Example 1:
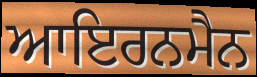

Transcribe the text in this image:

ਆਇਰਨਮੈਨ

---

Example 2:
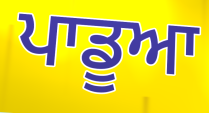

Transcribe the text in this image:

ਪਾਡੂਆ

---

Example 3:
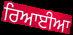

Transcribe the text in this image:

ਰਿਆਈਆ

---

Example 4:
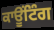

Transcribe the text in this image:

ਕਾਊਂਟਿੰਗ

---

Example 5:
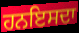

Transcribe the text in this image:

ਹਨਇਸਦਾ